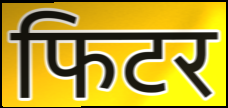
फिटर